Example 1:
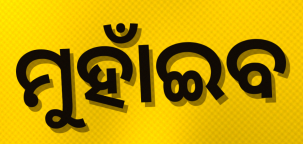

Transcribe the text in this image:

ମୁହାଁଇବ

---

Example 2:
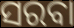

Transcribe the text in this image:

ସରବା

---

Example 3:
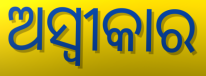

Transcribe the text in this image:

ଅସ୍ବୀକାର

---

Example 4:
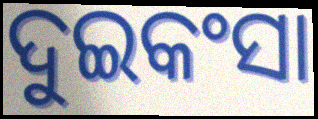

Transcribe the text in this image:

ଦୁଇକଂସା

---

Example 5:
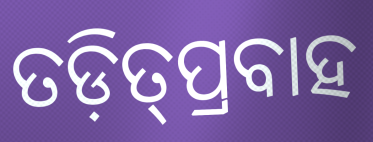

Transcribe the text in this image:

ତଡ଼ିତ୍‌ପ୍ରବାହ